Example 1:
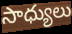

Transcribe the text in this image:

సాధ్యులు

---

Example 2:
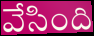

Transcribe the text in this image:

వేసింది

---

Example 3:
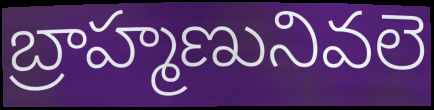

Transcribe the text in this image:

బ్రాహ్మణునివలె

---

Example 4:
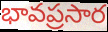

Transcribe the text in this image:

భావప్రసార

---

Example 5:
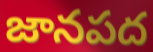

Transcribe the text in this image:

జానపద